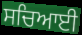
ਸਚਿਆਈ